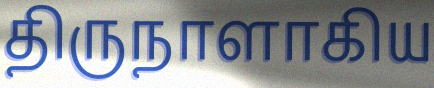
திருநாளாகிய